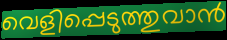
വെളിപ്പെടുത്തുവാൻ